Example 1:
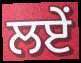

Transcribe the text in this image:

ਲਏਂ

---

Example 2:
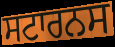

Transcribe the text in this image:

ਸਟਾਰਨਸ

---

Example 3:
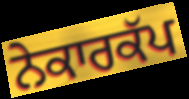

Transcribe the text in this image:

ਨੇਕਾਰਕੱਪ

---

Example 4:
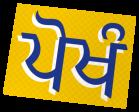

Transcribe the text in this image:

ਪੋਖੰ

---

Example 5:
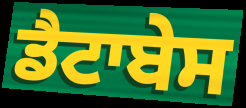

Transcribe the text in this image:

ਡੈਟਾਬੇਸ